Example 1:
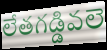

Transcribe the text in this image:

లేతగడ్డివలె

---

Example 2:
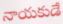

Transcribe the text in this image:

నాయకుడే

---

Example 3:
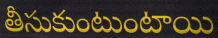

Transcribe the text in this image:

తీసుకుంటుంటాయి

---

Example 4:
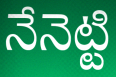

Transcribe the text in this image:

నేనెట్టి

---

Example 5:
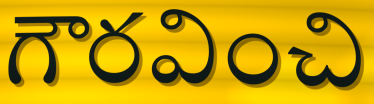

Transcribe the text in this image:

గౌరవించి